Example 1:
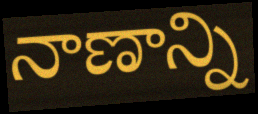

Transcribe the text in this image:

నాణాన్ని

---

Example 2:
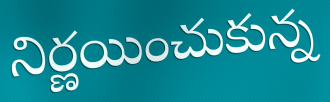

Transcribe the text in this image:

నిర్ణయించుకున్న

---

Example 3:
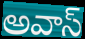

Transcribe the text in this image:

అవాస్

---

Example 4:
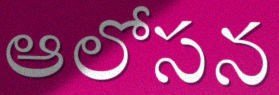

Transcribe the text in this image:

ఆలోసన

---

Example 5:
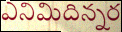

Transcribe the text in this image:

ఎనిమిదిన్నర